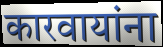
कारवायांना